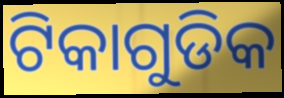
ଟିକାଗୁଡିକ